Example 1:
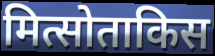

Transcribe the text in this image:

मित्सोताकिस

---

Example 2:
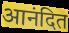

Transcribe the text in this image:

आनंदित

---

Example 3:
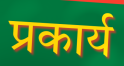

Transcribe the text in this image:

प्रकार्य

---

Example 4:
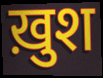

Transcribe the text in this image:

ख़ुश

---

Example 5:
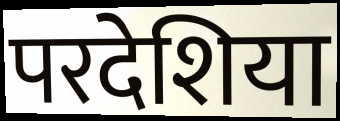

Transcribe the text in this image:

परदेशिया